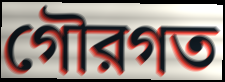
গৌরগত